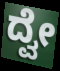
ದ್ವೇ